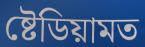
ষ্টেডিয়ামত